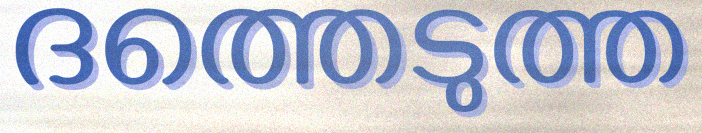
ദത്തെടുത്ത